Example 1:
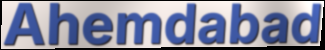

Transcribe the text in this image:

Ahemdabad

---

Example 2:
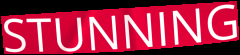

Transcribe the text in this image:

STUNNING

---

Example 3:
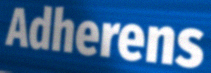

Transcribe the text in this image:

Adherens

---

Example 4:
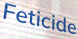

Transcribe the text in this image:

Feticide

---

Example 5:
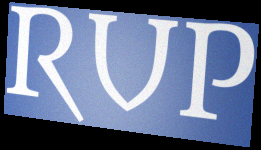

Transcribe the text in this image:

RUP